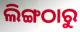
ଲିଙ୍ଗଠାରୁ